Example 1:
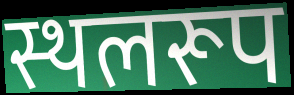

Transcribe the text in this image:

स्थलरूप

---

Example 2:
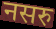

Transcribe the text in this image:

नसरु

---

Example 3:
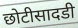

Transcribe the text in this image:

छोटीसादडी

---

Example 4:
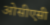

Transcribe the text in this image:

ओसीएसी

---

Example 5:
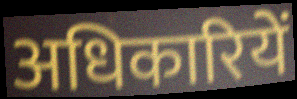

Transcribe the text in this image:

अधिकारियें